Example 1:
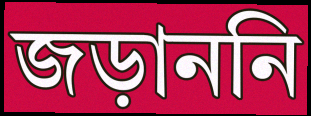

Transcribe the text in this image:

জড়াননি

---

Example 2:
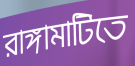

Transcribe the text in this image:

রাঙ্গামাটিতে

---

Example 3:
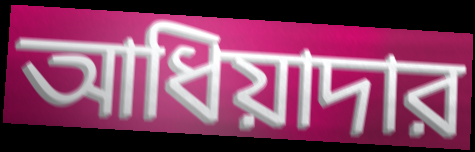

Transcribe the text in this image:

আধিয়াদার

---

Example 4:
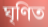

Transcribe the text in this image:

ঘৃণিত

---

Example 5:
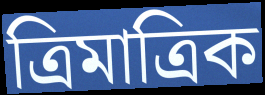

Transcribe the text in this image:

ত্রিমাত্রিক